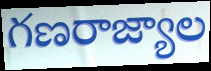
గణరాజ్యాల